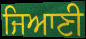
ਜਿਆਣੀ